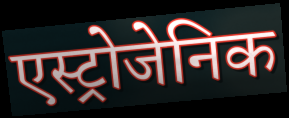
एस्ट्रोजेनिक